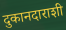
दुकानदाराशी